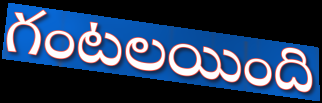
గంటలయింది